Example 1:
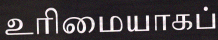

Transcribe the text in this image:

உரிமையாகப்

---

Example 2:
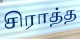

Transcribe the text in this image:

சிராத்த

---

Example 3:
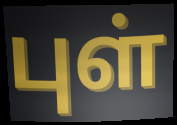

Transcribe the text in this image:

புள்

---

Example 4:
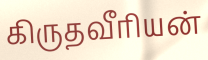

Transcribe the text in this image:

கிருதவீரியன்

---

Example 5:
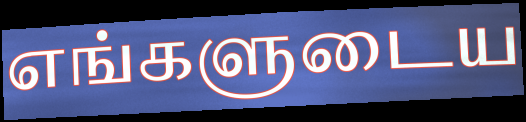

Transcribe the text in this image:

எங்களுடைய